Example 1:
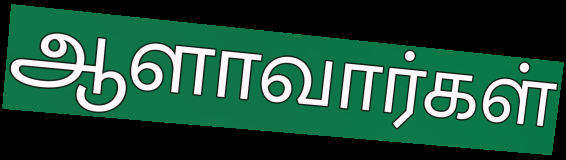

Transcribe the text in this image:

ஆளாவார்கள்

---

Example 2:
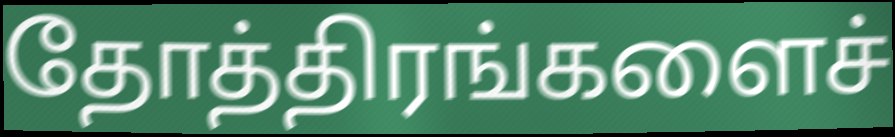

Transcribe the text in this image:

தோத்திரங்களைச்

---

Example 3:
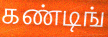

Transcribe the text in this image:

கண்டிங்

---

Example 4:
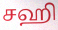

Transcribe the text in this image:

சஹி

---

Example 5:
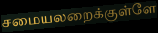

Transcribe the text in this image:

சமையலறைக்குள்ளே